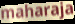
maharaja